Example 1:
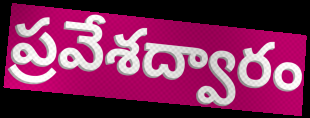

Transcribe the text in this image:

ప్రవేశద్వారం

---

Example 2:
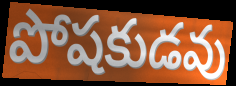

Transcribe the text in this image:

పోషకుడవు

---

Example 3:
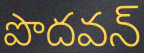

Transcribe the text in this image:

పొదవన్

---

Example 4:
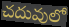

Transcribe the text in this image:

చదువులో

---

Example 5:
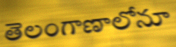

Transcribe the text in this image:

తెలంగాణాలోనూ